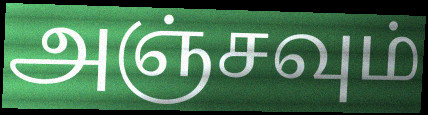
அஞ்சவும்